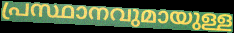
പ്രസ്ഥാനവുമായുള്ള